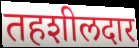
तहशीलदार